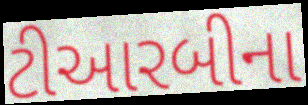
ટીઆરબીના